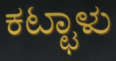
ಕಟ್ಟಾಳು